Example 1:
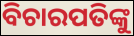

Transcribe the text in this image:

ବିଚାରପତିଙ୍କୁ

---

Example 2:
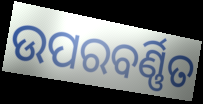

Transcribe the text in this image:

ଉପରବର୍ଣ୍ଣିତ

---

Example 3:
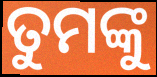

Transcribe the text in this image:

ତୁମଙ୍କୁ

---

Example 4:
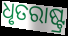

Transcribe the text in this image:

ଧୃତରାଷ୍ଟ୍ର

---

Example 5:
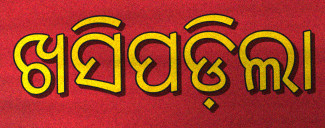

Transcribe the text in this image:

ଖସିପଡ଼ିଲା